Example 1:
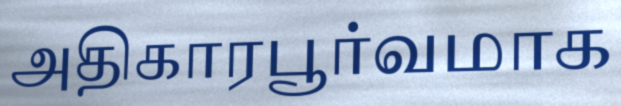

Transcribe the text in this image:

அதிகாரபூர்வமாக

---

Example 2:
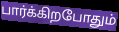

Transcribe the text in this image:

பார்க்கிறபோதும்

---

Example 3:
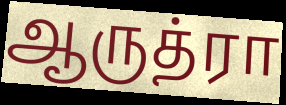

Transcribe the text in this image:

ஆருத்ரா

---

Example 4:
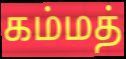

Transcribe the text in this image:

கம்மத்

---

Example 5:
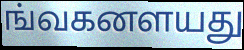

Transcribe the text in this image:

ங்வகனளயது